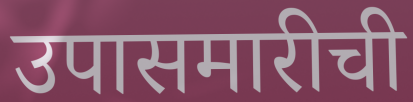
उपासमारीची